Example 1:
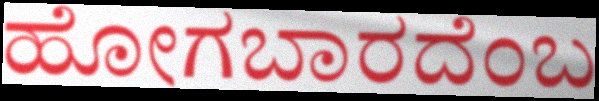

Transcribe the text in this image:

ಹೋಗಬಾರದೆಂಬ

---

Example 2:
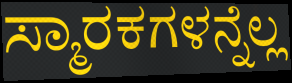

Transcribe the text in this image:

ಸ್ಮಾರಕಗಳನ್ನೆಲ್ಲ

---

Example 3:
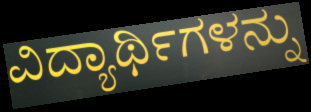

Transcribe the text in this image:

ವಿದ್ಯಾರ್ಥಿಗಳನ್ನು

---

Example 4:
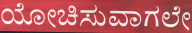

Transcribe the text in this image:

ಯೋಚಿಸುವಾಗಲೇ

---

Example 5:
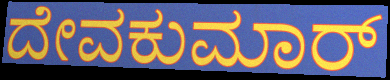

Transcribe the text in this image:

ದೇವಕುಮಾರ್